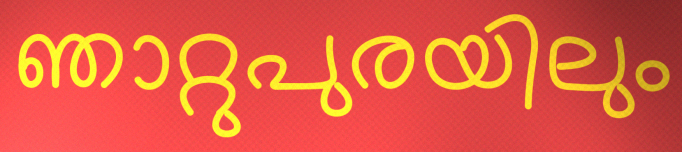
ഞാറ്റുപുരയിലും